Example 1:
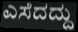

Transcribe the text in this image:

ಎಸೆದದ್ದು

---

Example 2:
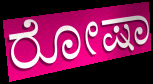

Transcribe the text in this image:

ರೋಷಾ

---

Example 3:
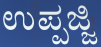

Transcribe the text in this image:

ಉಪ್ಪಜ್ಜಿ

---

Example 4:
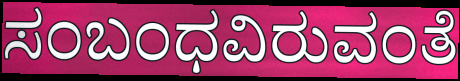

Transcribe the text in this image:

ಸಂಬಂಧವಿರುವಂತೆ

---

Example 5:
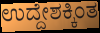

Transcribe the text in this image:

ಉದ್ದೇಶಕ್ಕಿಂತ